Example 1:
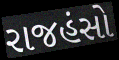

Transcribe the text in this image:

રાજહંસો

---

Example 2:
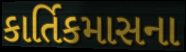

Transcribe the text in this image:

કાર્તિકમાસના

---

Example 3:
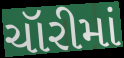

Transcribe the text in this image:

ચૉરીમાં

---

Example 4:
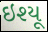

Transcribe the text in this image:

ઇશ્યૂ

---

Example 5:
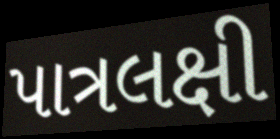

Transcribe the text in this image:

પાત્રલક્ષી